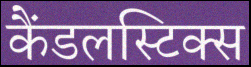
कैंडलस्टिक्स